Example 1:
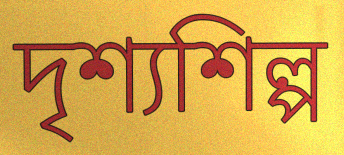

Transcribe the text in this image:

দৃশ্যশিল্প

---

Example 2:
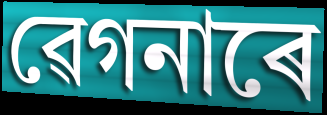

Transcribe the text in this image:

ৱেগনাৰে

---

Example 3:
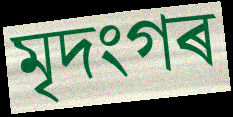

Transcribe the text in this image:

মৃদংগৰ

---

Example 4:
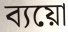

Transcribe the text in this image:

ব্যয়ো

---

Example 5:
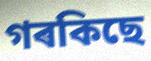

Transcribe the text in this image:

গৰকিছে